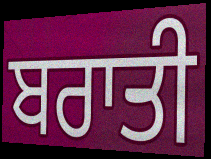
ਬਰਾਤੀ